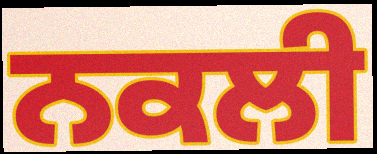
ਨਕਲੀ